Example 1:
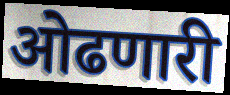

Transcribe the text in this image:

ओढणारी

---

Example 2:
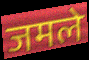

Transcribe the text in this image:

जमले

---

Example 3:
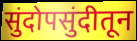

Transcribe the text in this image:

सुंदोपसुंदीतून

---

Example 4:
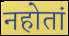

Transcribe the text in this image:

नहोतां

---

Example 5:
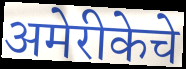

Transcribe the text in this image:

अमेरीकेचे